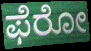
ಫೆರೋ